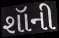
શૉની